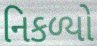
નિકળ્યો